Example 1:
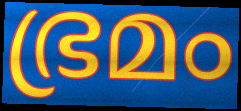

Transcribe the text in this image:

ഭ്രമം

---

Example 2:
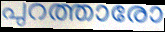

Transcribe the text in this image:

പുറത്താരോ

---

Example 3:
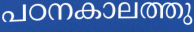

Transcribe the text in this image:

പഠനകാലത്തു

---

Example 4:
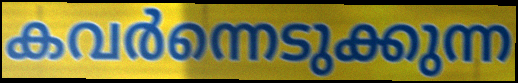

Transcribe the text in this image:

കവർന്നെടുക്കുന്ന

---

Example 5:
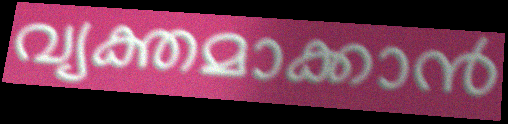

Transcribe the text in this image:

വ്യക്തമാക്കാൻ